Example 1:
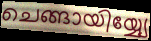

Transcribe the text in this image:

ചെങ്ങായിയ്യ്യേ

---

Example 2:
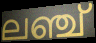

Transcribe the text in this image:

ലഞ്ച്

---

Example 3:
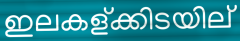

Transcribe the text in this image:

ഇലകള്ക്കിടയില്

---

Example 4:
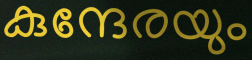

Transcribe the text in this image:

കുന്ദേരയും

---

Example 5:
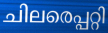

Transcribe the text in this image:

ചിലരെപ്പറ്റി